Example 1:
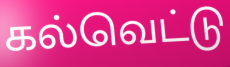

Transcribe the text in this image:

கல்வெட்டு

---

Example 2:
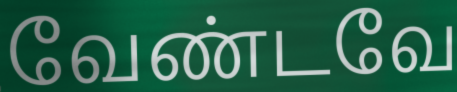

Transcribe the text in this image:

வேண்டவே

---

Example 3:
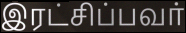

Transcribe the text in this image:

இரட்சிப்பவர்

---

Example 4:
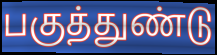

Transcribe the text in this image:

பகுத்துண்டு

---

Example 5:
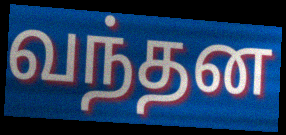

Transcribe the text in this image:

வந்தன